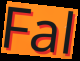
Fal